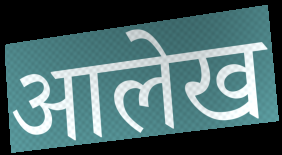
आलेख